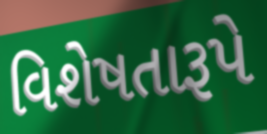
વિશેષતારૂપે